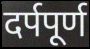
दर्पपूर्ण